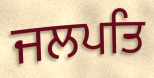
ਜਲਪਤਿ